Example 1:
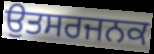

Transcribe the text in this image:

ਉਤਸਰਜਨਕ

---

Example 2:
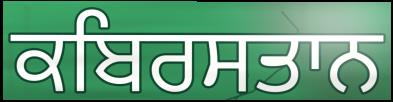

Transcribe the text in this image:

ਕਬਿਰਸਤਾਨ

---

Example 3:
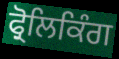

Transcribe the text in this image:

ਫ੍ਰੋਲਿਕਿੰਗ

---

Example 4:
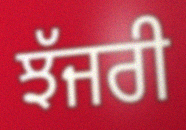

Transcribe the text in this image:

ਝੱਜਰੀ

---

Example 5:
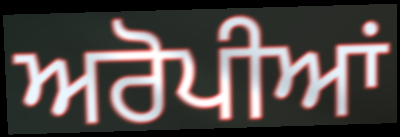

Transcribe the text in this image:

ਅਰੋਪੀਆਂ